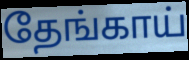
தேங்காய்